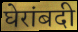
घेरांबदी